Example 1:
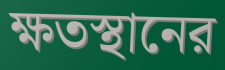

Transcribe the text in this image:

ক্ষতস্থানের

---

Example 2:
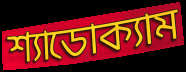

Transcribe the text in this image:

শ্যাডোক্যাম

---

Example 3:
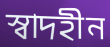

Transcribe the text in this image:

স্বাদহীন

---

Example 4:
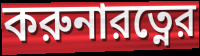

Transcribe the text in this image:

করুনারত্নের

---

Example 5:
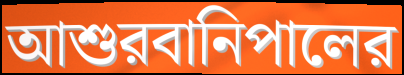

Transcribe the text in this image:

আশুরবানিপালের